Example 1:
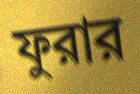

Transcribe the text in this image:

ফুরার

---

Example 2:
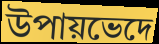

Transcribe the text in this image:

উপায়ভেদে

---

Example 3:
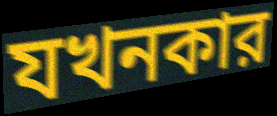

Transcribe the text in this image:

যখনকার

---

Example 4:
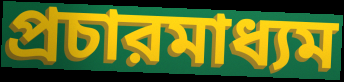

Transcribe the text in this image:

প্রচারমাধ্যম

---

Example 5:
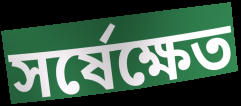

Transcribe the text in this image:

সর্ষেক্ষেত